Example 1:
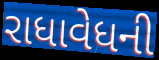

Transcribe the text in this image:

રાધાવેધની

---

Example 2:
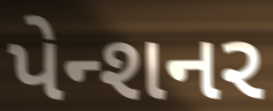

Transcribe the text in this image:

પેન્શનર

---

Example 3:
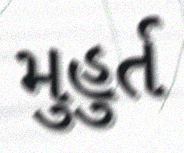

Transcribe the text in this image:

મુહુર્ત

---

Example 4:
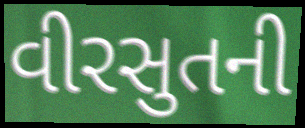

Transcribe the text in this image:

વીરસુતની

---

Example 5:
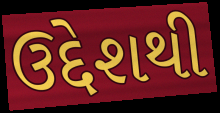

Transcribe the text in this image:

ઉદ્દેશથી